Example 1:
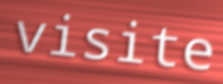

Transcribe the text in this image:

visite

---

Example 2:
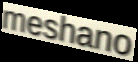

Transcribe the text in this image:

meshano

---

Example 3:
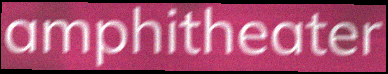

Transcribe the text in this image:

amphitheater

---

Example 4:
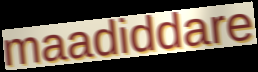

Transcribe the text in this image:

maadiddare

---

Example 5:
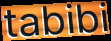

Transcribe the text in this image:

tabibi